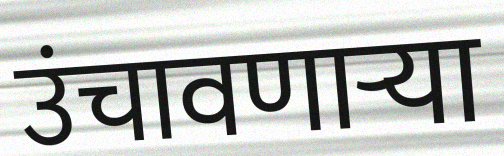
उंचावणाऱ्या